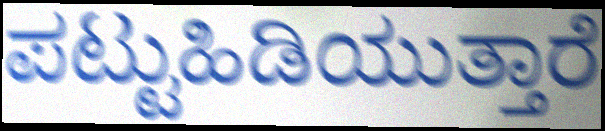
ಪಟ್ಟುಹಿಡಿಯುತ್ತಾರೆ